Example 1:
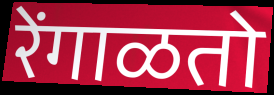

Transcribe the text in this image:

रेंगाळतो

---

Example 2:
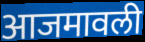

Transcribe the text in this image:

आजमावली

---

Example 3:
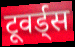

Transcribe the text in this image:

टूवर्ड्स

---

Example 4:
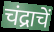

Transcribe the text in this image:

चंद्राचें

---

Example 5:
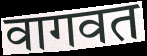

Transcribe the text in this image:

वागवत